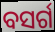
ବସର୍ଗ